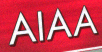
AIAA